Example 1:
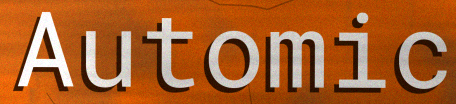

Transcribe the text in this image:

Automic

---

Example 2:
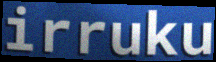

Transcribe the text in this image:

irruku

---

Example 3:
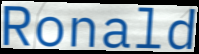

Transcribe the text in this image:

Ronald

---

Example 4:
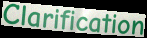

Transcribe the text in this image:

Clarification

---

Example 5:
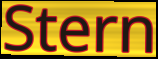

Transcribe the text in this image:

Stern